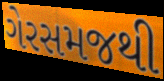
ગેરસમજથી